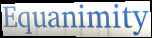
Equanimity